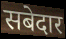
सबेदार